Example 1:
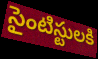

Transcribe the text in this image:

సైంటిస్టులకి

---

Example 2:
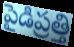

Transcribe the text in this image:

పైడిప్రత్తి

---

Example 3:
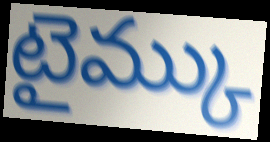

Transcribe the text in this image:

టైమ్కు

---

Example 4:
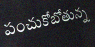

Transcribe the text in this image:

పంచుకోబోతున్న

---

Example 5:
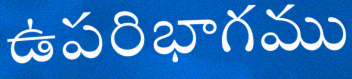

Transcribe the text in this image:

ఉపరిభాగము